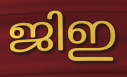
ജിഇ